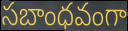
సబాంధవంగా